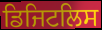
ਡਿਜਿਟਲਿਸ